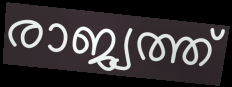
രാജ്യത്ത്